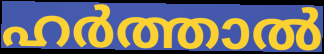
ഹർത്താൽ